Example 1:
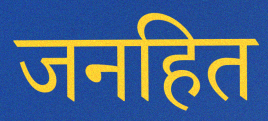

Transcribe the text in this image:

जनहित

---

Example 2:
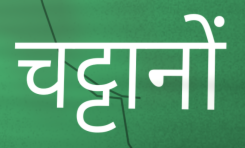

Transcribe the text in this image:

चट्टानों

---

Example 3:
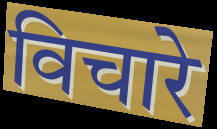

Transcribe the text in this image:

विचारे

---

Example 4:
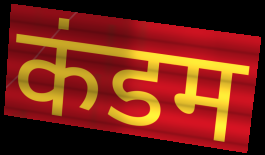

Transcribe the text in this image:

कंडम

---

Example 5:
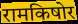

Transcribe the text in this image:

रामकिषोर